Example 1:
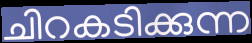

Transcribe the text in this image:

ചിറകടിക്കുന്ന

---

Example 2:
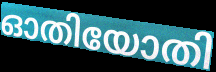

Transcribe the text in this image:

ഓതിയോതി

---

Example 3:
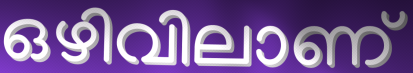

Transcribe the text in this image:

ഒഴിവിലാണ്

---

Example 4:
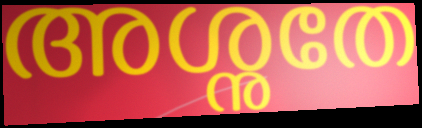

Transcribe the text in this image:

അശ്നുതേ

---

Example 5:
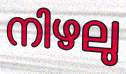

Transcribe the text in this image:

നിഴലു